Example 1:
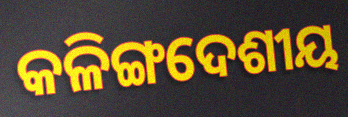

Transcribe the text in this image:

କଳିଙ୍ଗଦେଶୀୟ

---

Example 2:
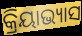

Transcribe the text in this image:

କ୍ରିୟାଭ୍ୟାସ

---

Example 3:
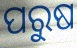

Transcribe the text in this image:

ପରୁଷ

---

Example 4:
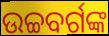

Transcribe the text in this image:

ଉଚ୍ଚବର୍ଗଙ୍କ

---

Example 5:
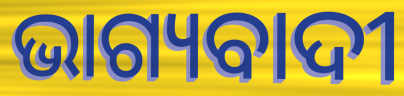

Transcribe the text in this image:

ଭାଗ୍ୟବାଦୀ